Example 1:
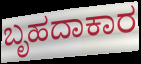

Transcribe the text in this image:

ಬೃಹದಾಕಾರ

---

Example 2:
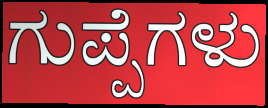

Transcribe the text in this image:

ಗುಪ್ಪೆಗಳು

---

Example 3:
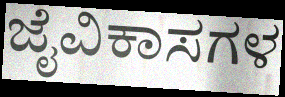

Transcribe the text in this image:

ಜೈವಿಕಾಸಗಳ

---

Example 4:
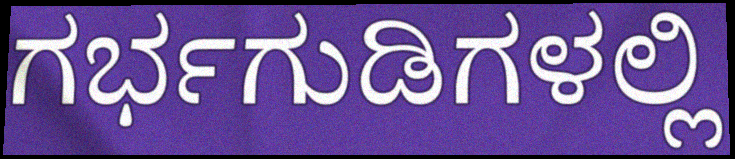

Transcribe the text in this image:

ಗರ್ಭಗುಡಿಗಳಲ್ಲಿ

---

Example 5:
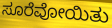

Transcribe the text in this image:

ಸೂರೆವೋಯಿತು